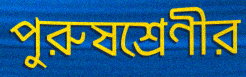
পুরুষশ্রেণীর